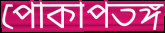
পোকাপতঙ্গ